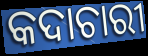
କଦାଚାରୀ